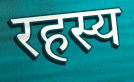
रहस्य